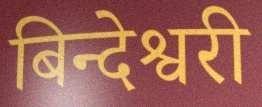
बिन्देश्वरी